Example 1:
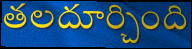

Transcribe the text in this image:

తలదూర్చింది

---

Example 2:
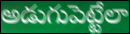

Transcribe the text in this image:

అడుగుపెట్టేలా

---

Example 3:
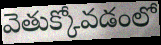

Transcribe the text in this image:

వెతుక్కోవడంలో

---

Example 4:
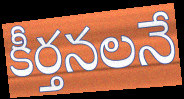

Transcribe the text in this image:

కీర్తనలనే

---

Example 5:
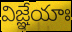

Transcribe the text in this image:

విజ్ఞేయాః